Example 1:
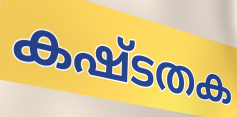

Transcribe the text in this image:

കഷ്ടതക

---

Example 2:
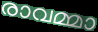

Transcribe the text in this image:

രാവമ്മാ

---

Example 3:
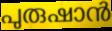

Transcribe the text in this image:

പുരുഷാൻ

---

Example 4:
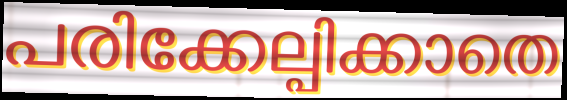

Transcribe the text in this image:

പരിക്കേല്പിക്കാതെ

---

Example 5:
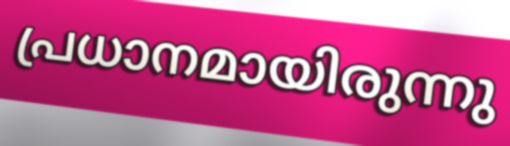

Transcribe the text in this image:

പ്രധാനമായിരുന്നു